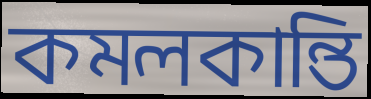
কমলকান্তি